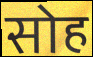
सोह